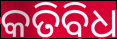
କତିବିଧ